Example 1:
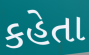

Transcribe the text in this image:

કહેતા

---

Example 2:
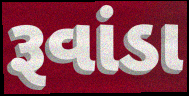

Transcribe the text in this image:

રૂવાંડા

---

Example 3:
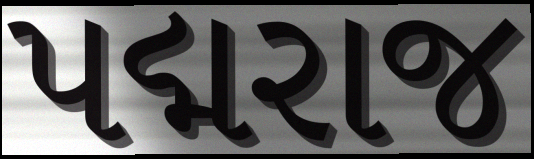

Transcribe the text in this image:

પદ્મરાજ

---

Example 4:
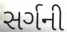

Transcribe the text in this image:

સર્ગની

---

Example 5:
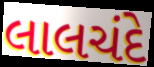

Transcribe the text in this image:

લાલચંદે